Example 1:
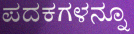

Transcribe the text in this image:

ಪದಕಗಳನ್ನೂ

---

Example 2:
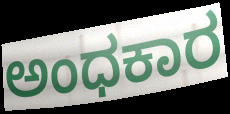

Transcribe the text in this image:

ಅಂಧಕಾರ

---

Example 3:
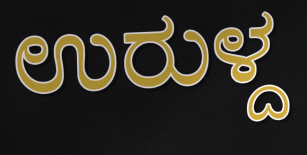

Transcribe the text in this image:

ಉರುಳ್ದ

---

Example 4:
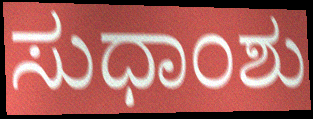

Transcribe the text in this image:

ಸುಧಾಂಶು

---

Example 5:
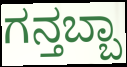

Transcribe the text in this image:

ಗನ್ತಬ್ಬಾ